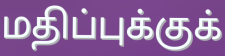
மதிப்புக்குக்